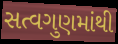
સત્વગુણમાંથી